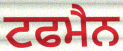
ਟਫਮੈਨ